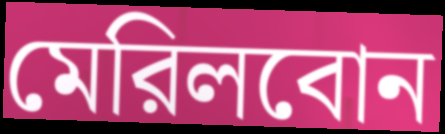
মেরিলবোন